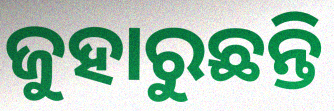
ଜୁହାରୁଛନ୍ତି